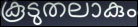
കൂടുതലാകും